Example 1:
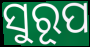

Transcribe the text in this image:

ସୁରୂପ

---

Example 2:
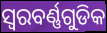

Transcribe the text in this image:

ସ୍ୱରବର୍ଣ୍ଣଗୁଡିକ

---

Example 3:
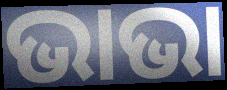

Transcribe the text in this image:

ଭାଭା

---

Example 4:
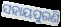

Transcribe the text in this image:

ସହାୟପୁରଣି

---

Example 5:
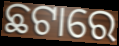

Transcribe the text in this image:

ଛଟାରେ